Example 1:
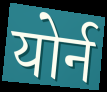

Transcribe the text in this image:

योर्न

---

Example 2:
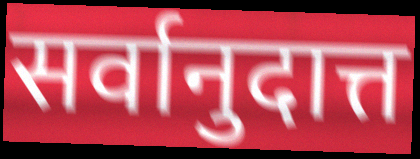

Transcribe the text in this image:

सर्वानुदात्त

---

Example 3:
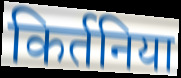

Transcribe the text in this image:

किर्तनिया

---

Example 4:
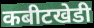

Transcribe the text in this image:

कबीटखेडी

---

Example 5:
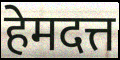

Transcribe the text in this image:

हेमदत्त